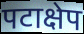
पटाक्षेप